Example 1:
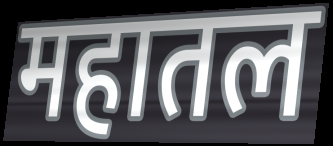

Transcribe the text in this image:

महातल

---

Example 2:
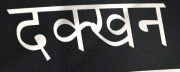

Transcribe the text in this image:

दक्खन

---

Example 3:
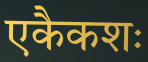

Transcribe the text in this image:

एकैकशः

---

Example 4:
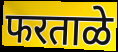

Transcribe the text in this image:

फरताळे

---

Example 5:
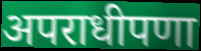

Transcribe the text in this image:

अपराधीपणा